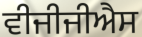
ਵੀਜੀਜੀਐਸ